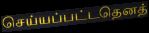
செய்யப்பட்டதெனத்